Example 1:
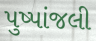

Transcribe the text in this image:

પુષ્પાંજલી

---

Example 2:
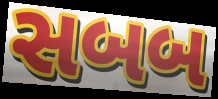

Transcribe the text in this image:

સબબ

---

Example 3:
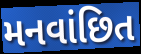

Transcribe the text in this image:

મનવાંછિત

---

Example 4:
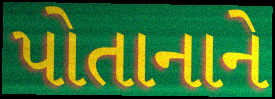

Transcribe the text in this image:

પોતાનાને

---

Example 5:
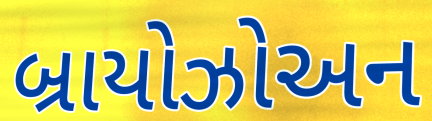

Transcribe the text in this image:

બ્રાયોઝોઅન